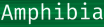
Amphibia